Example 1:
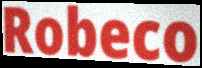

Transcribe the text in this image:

Robeco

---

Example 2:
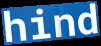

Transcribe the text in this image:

hind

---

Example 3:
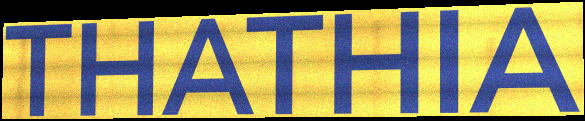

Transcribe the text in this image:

THATHIA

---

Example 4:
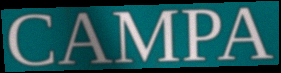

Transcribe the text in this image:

CAMPA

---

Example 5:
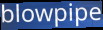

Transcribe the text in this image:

blowpipe